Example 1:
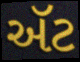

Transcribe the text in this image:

ઍટ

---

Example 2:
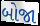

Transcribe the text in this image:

બોજા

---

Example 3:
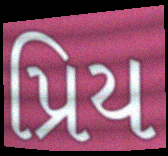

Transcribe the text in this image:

પ્રિય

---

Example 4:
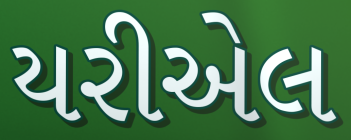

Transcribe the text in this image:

યરીએલ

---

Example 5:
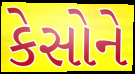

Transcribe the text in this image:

કેસોને